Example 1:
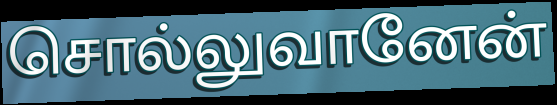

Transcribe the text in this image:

சொல்லுவானேன்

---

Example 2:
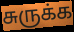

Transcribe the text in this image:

சுருக்க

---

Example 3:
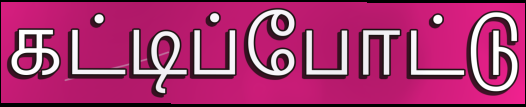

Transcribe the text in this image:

கட்டிப்போட்டு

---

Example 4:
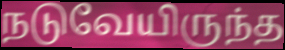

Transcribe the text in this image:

நடுவேயிருந்த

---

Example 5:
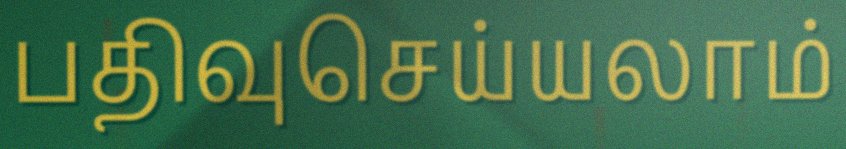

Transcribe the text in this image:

பதிவுசெய்யலாம்